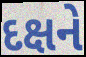
દક્ષને